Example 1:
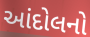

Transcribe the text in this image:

આંદોલનો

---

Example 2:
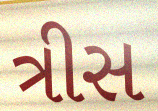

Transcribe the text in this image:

ત્રીસ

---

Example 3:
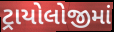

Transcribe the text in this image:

ટ્રાયોલોજીમાં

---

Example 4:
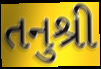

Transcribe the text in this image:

તનુશ્રી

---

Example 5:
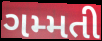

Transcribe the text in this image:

ગમ્મતી